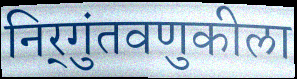
निर्गुंतवणुकीला